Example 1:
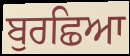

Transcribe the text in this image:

ਬੁਰਛਿਆ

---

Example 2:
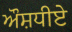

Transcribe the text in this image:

ਔਸ਼ਧੀਏ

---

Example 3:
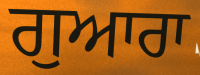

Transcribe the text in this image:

ਗੁਆਰਾ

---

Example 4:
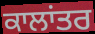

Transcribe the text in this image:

ਕਾਲਾਂਤਰ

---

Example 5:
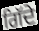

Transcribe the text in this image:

ਗਿੱਦੇ